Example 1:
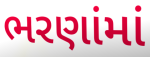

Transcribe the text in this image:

ભરણાંમાં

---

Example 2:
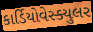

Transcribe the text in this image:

કાર્ડિયોવેસ્ક્યુલર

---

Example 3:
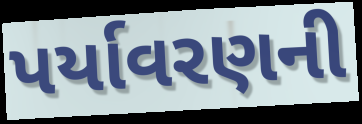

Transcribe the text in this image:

પર્યાવરણની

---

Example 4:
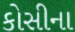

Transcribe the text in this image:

કોસીના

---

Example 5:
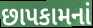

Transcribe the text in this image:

છાપકામનાં